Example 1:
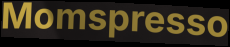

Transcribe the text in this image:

Momspresso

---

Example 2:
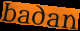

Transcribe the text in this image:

badan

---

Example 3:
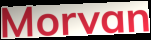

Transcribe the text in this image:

Morvan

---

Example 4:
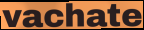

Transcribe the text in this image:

vachate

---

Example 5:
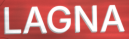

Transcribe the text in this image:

LAGNA